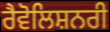
ਰੈਵੋਲਿਸ਼ਨਰੀ